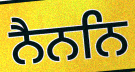
ਨੈਨਨਿ